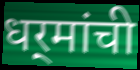
धर्मांची